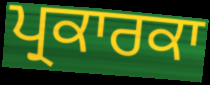
ਪ੍ਰਕਾਰਕਾ